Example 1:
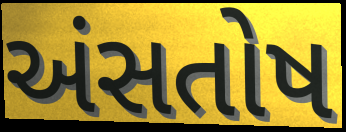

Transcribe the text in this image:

અંસતોષ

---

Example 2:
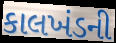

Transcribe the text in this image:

કાલખંડની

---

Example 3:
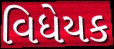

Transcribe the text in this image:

વિધેયક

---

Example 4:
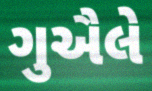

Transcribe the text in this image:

ગુઐલે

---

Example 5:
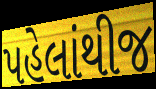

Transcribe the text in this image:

પહેલાંથીજ